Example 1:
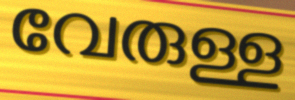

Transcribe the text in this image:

വേരുള്ള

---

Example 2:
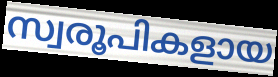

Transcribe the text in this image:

സ്വരൂപികളായ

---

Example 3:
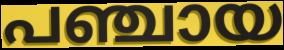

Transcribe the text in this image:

പഞ്ചായ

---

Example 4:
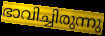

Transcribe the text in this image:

ഭാവിച്ചിരുന്നു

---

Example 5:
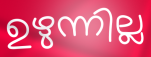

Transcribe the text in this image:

ഉഴുന്നില്ല